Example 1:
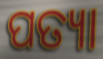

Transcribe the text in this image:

ପତ୍ୟା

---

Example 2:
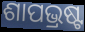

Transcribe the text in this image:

ଶାପଭ୍ରଷ୍ଟ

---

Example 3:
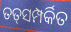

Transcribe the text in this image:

ତତ୍‌ସମ୍ପର୍କିତ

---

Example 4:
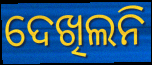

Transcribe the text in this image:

ଦେଖିଲନି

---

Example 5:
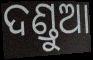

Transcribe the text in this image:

ଦଣ୍ଡୁଆ